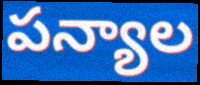
పన్యాల